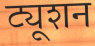
ट्यूशन